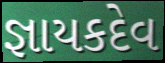
જ્ઞાયકદેવ